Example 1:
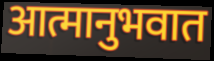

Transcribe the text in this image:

आत्मानुभवात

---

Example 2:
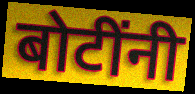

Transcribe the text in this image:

बोटींनी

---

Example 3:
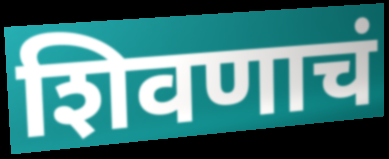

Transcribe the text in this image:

शिवणाचं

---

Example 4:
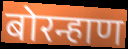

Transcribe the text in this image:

बोरन्हाण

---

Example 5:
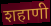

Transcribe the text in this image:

शहाणी